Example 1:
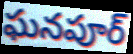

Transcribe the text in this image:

ఘనపూర్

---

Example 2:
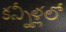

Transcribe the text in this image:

కన్నీళ్లలో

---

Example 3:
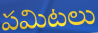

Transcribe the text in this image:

పమిటలు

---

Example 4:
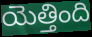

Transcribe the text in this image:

యెత్తింది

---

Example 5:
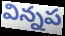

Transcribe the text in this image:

విన్నప